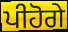
ਪੀਹੋਗੇ